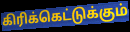
கிரிக்கெட்டுக்கும்